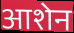
आशेन